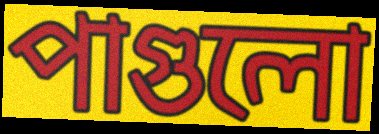
পাগুলো